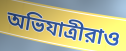
অভিযাত্রীরাও